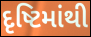
દૃષ્ટિમાંથી